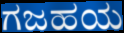
ಗಜಹಯ